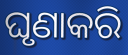
ଘୃଣାକରି